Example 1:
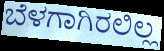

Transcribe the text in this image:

ಬೆಳಗಾಗಿರಲಿಲ್ಲ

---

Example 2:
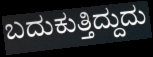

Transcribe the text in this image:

ಬದುಕುತ್ತಿದ್ದುದು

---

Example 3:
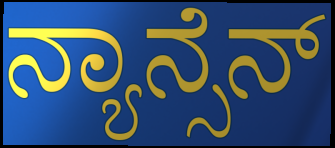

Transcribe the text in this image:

ನ್ಯಾನ್ಸೆನ್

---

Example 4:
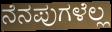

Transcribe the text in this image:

ನೆನಪುಗಳೆಲ್ಲ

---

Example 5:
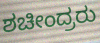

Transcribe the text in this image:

ಶಚೀಂದ್ರರು